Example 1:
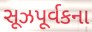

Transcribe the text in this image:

સૂઝપૂર્વકના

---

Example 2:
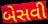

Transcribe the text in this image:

બેસવી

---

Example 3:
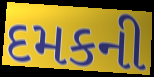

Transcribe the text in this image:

દમકની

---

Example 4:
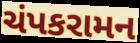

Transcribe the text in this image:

ચંપકરામન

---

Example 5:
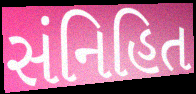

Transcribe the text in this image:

સંનિહિત